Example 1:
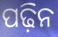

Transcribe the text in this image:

ପଢ଼ିନ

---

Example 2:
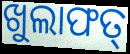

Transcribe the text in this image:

ଖୁଲାଫତ୍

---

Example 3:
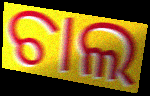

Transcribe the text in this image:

ଚାଲ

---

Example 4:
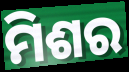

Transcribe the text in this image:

ମିଶର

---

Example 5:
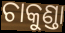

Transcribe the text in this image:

ଚାକୁଣ୍ଡା